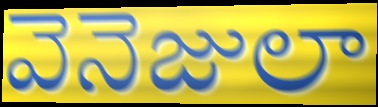
వెనెజులా